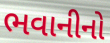
ભવાનીનો